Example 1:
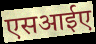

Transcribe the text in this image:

एसआईए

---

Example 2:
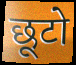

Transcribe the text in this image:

छूटो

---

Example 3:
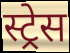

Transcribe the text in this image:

स्ट्रेस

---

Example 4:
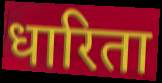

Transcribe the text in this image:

धारिता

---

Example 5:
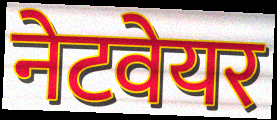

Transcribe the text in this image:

नेटवेयर